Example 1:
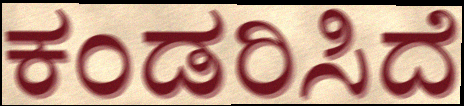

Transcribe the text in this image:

ಕಂಡರಿಸಿದೆ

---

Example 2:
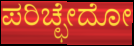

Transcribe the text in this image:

ಪರಿಚ್ಛೇದೋ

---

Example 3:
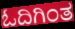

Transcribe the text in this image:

ಓದಿಗಿಂತ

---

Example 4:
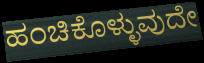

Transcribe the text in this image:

ಹಂಚಿಕೊಳ್ಳುವುದೇ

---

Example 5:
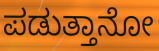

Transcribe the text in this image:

ಪಡುತ್ತಾನೋ